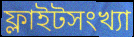
ফ্লাইটসংখ্যা